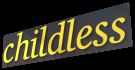
childless